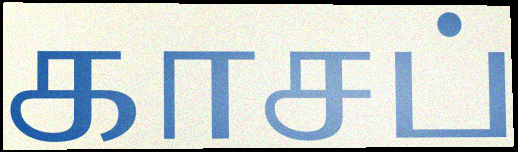
காசப்